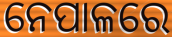
ନେପାଳରେ